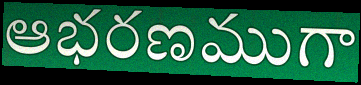
ఆభరణముగా